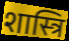
शास्त्रि